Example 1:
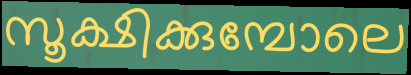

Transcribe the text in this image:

സൂക്ഷിക്കുമ്പോലെ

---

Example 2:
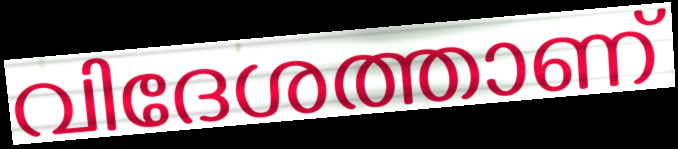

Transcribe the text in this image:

വിദേശത്താണ്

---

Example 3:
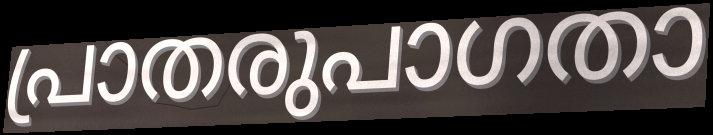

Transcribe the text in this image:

പ്രാതരുപാഗതാ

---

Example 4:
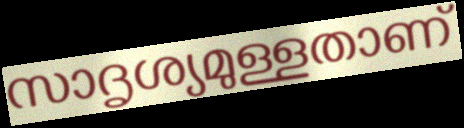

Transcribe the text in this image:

സാദൃശ്യമുള്ളതാണ്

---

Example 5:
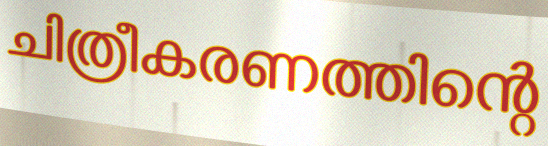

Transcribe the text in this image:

ചിത്രീകരണത്തിന്റെ